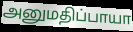
அனுமதிப்பாயா